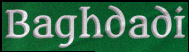
Baghdadi